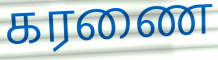
கரணை